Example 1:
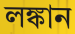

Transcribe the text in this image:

লঙ্কান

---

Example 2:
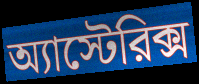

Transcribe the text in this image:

অ্যাস্টেরিক্স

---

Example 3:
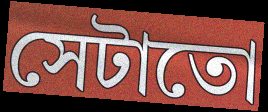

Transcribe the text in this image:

সেটাতো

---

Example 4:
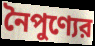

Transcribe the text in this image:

নৈপুণ্যের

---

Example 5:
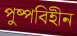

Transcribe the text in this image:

পুষ্পবিহীন